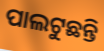
ପାଲଟୁଛନ୍ତି